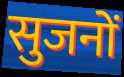
सुजनों